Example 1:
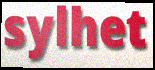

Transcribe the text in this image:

sylhet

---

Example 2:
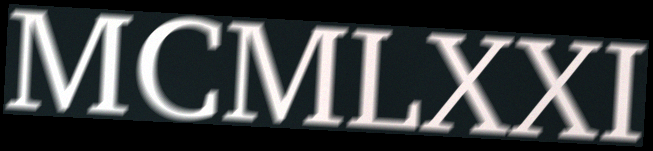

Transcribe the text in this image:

MCMLXXI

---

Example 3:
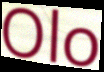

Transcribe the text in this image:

Olo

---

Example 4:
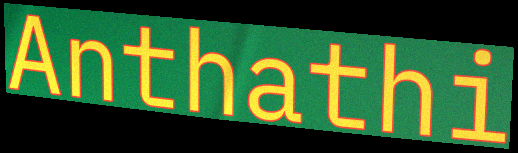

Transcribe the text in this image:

Anthathi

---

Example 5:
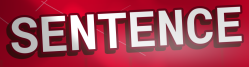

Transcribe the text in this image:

SENTENCE